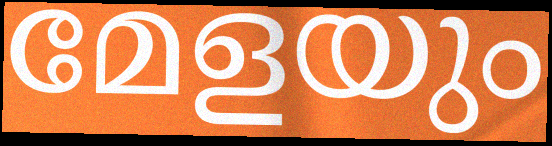
മേളയും